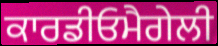
ਕਾਰਡੀਓਮੈਗੇਲੀ